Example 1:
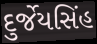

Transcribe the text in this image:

દુર્જેયસિંહ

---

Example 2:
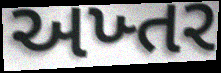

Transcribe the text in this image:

અખ્તર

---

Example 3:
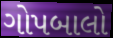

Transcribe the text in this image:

ગોપબાલો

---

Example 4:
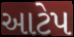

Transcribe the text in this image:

આટેપ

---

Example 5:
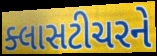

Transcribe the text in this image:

ક્લાસટીચરને